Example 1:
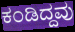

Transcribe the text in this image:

ಕಂಡಿದ್ದವು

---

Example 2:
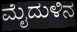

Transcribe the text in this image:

ಮೈದುಳಿನ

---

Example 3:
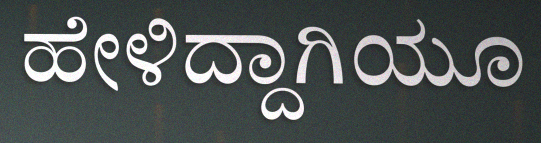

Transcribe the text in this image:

ಹೇಳಿದ್ದಾಗಿಯೂ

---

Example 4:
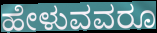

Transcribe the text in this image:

ಹೇಳುವವರೂ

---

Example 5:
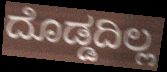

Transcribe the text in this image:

ದೊಡ್ಡದಿಲ್ಲ